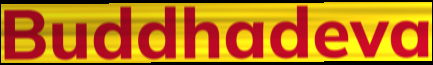
Buddhadeva